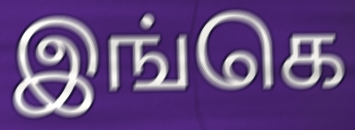
இங்கெ